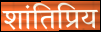
शांतिप्रिय